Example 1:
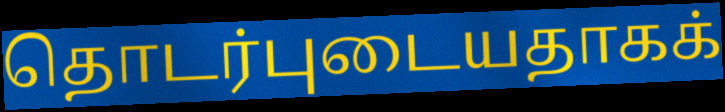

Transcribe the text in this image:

தொடர்புடையதாகக்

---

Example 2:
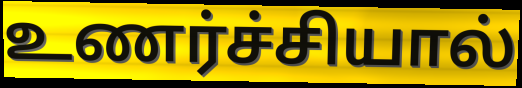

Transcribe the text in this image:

உணர்ச்சியால்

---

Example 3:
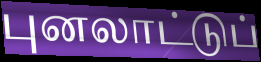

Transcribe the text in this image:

புனலாட்டுப்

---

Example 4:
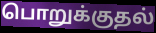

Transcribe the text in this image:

பொறுக்குதல்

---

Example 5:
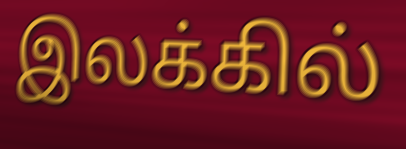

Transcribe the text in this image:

இலக்கில்